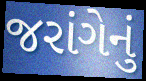
જરાંગેનું